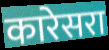
कारेसरा